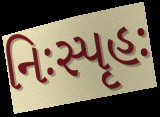
નિઃસ્પૃહઃ